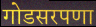
गोडसरपणा